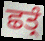
ਛਤ੍ਰੰ